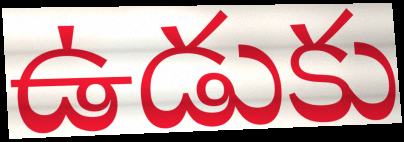
ఉడుకు